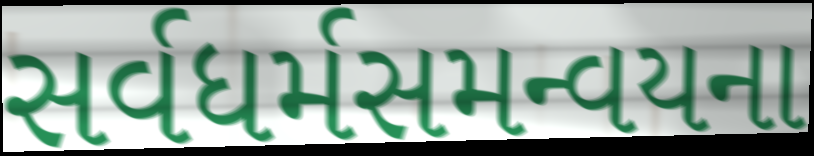
સર્વધર્મસમન્વયના